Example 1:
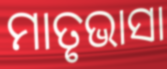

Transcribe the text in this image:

ମାତୃଭାସା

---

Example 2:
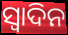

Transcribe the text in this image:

ସ୍ବାଦିନ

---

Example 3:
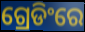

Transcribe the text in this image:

ଗ୍ରେଡିଂରେ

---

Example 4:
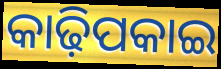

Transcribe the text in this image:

କାଢ଼ିପକାଇ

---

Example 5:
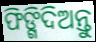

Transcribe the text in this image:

ଫିଙ୍ଗିଦିଅନ୍ତୁ